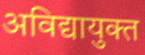
अविद्यायुक्त